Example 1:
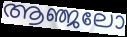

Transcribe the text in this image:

ആഞ്ജലോ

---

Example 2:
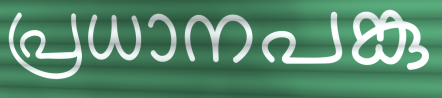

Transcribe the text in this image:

പ്രധാനപങ്കു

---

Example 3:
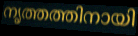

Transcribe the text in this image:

നൃത്തത്തിനായി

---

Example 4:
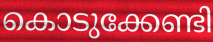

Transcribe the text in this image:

കൊടുക്കേണ്ടി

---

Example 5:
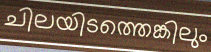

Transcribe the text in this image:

ചിലയിടത്തെങ്കിലും